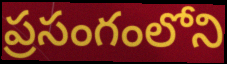
ప్రసంగంలోని